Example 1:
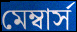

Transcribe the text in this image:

মেম্বার্স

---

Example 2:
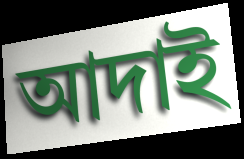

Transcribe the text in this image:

আদাই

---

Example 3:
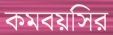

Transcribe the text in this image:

কমবয়সির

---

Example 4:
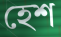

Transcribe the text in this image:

হেশ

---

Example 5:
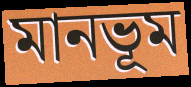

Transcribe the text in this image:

মানভূম